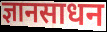
ज्ञानसाधन